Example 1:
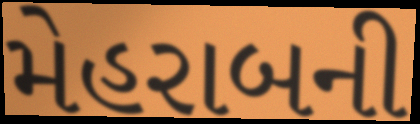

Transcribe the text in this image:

મેહરાબની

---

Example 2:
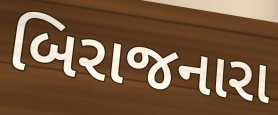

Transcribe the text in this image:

બિરાજનારા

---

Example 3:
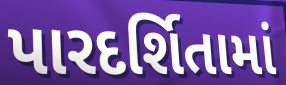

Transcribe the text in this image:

પારદર્શિતામાં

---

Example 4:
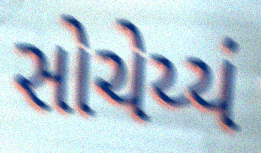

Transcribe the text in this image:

સોચેય્યં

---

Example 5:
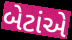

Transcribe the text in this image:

બેટાંએ